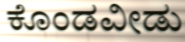
ಕೊಂಡವೀಡು